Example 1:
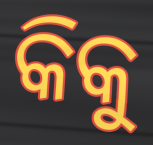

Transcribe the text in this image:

କିକୁ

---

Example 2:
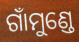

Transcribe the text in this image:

ଗାଁମୁଣ୍ଡେ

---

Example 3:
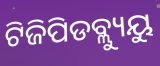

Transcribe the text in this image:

ଟିଜିପିଡବ୍ଲ୍ୟୁୟୁ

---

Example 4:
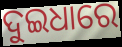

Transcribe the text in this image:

ଦୁଇଧାରେ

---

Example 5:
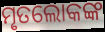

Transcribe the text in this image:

ମୃତଲୋକଙ୍କ